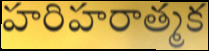
హరిహరాత్మక